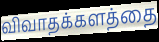
விவாதக்களத்தை